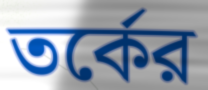
তর্কের